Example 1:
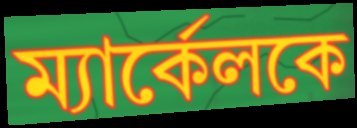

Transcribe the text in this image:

ম্যার্কেলকে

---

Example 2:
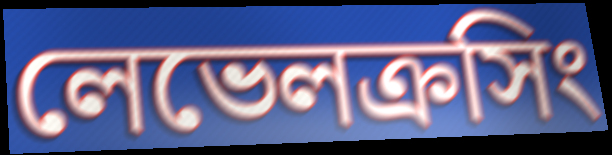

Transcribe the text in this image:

লেভেলক্রসিং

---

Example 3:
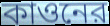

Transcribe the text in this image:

কাওনের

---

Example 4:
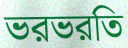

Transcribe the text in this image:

ভরভরতি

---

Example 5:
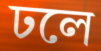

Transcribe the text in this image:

ঢলে